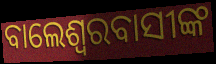
ବାଲେଶ୍ବରବାସୀଙ୍କ